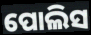
ପୋଲିସ